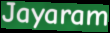
Jayaram